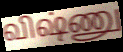
விஷ்ணு